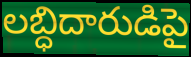
లబ్ధిదారుడిపై